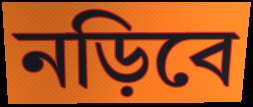
নড়িবে